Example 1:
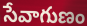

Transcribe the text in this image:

సేవాగుణం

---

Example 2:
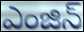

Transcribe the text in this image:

ఎంజిన్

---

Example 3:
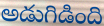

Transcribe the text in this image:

అడుగిడింది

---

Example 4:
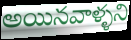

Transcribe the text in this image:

అయినవాళ్ళని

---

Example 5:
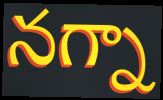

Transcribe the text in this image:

నగ్నా